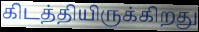
கிடத்தியிருக்கிறது